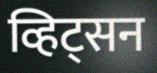
व्हिट्सन